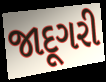
જાદૂગરી